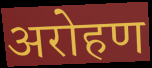
अरोहण